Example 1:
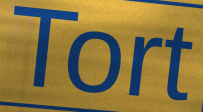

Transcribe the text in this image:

Tort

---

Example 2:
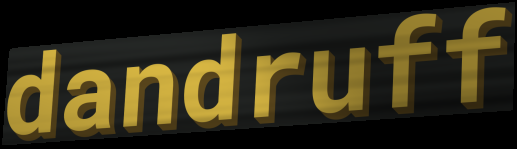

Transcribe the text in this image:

dandruff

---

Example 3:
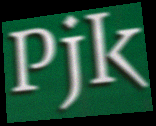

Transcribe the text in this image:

Pjk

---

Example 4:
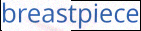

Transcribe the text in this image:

breastpiece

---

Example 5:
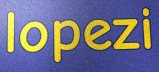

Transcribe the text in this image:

lopezi